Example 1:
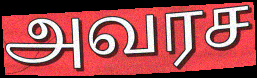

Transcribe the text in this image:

அவரச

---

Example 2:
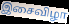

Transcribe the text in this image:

இசைவிழா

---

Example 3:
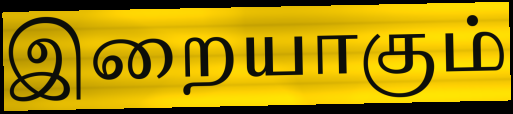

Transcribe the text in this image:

இறையாகும்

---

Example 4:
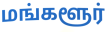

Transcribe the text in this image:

மங்களூர்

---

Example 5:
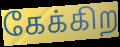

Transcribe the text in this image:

கேக்கிற